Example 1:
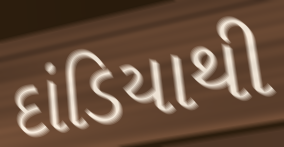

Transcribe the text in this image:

દાંડિયાથી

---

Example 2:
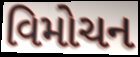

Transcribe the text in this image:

વિમોચન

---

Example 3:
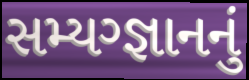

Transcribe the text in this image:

સમ્યગ્જ્ઞાનનું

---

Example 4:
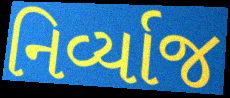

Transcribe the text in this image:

નિર્વ્યાજ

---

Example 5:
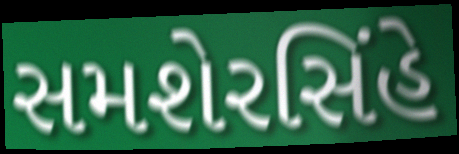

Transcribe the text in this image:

સમશેરસિંહે